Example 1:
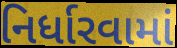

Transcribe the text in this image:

નિર્ધારવામાં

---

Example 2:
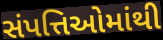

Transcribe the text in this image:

સંપત્તિઓમાંથી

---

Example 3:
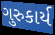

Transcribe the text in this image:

ગુરુકાર્ય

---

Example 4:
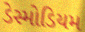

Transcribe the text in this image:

ડેસ્મોડિયમ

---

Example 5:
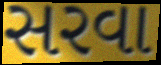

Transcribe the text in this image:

સરવા